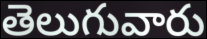
తెలుగువారు